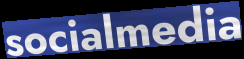
socialmedia